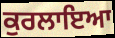
ਕੁਰਲਾਇਆ